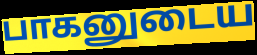
பாகனுடைய